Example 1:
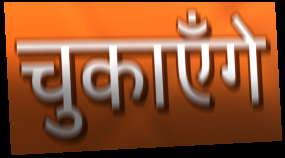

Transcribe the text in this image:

चुकाएँगे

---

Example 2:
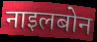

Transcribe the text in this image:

नाइलबोन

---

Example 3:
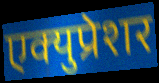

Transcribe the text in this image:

एक्युप्रेशर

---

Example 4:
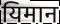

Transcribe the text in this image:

यिमान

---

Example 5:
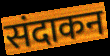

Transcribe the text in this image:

संदाकन